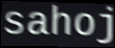
sahoj